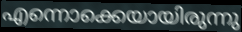
എന്നൊക്കെയായിരുന്നു